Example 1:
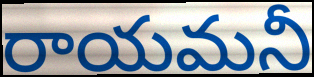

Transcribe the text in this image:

రాయమనీ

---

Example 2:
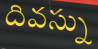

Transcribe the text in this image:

దివస్ను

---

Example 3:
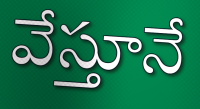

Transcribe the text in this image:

వేస్తూనే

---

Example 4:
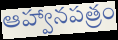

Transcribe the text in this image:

ఆహ్వానపత్రం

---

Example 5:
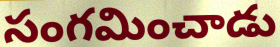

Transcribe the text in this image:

సంగమించాడు